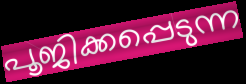
പൂജിക്കപ്പെടുന്ന